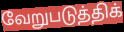
வேறுபடுத்திக்